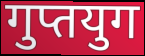
गुप्तयुग